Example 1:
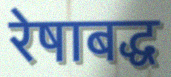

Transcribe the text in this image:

रेषाबद्ध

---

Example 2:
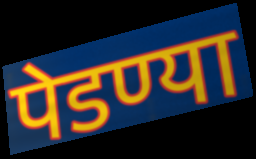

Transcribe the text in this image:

पेडण्या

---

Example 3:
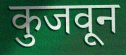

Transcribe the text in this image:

कुजवून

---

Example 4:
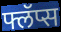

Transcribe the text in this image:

फ्लॅप्स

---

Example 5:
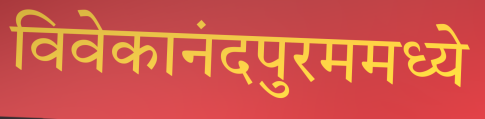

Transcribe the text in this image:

विवेकानंदपुरममध्ये